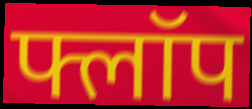
फ्लॉप